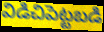
విడిచిపెట్టబడి